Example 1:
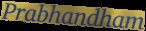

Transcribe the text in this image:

Prabhandham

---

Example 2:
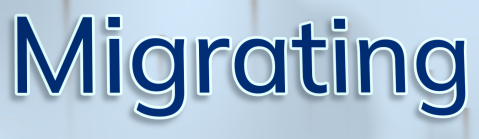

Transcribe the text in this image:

Migrating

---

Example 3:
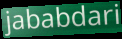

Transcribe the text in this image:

jababdari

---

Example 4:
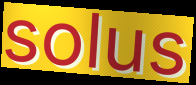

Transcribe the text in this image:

solus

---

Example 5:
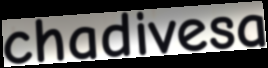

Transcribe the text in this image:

chadivesa